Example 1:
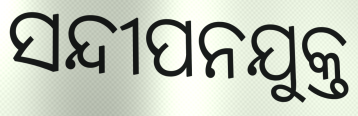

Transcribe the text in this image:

ସନ୍ଦୀପନଯୁକ୍ତ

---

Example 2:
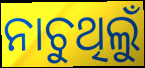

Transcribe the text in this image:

ନାଚୁଥିଲୁଁ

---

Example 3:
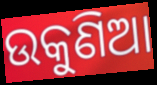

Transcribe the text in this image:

ଉକୁଣିଆ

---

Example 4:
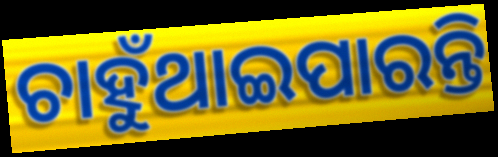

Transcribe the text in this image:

ଚାହୁଁଥାଇପାରନ୍ତି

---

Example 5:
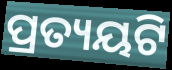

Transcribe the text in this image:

ପ୍ରତ୍ୟୟଟି